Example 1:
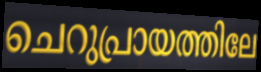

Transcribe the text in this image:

ചെറുപ്രായത്തിലേ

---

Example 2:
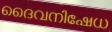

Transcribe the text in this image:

ദൈവനിഷേധ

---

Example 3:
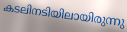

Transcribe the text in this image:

കടലിനടിയിലായിരുന്നു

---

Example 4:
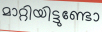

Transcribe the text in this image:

മാറ്റിയിട്ടുണ്ടോ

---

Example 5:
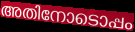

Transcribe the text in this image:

അതിനോടൊപ്പം